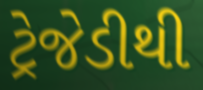
ટ્રેજેડીથી